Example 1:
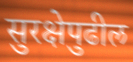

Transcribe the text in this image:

सुरक्षेपुढील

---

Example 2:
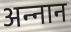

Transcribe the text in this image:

अन्नान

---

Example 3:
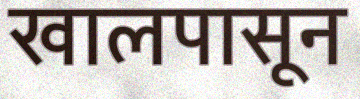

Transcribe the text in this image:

खालपासून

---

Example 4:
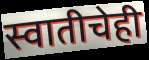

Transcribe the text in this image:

स्वातीचेही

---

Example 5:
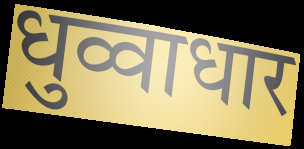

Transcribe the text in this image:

धुव्वाधार